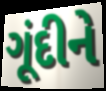
ગૂંદીને